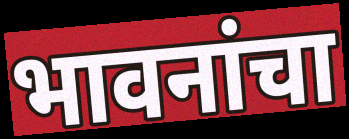
भावनांचा